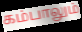
கம்பாலும்